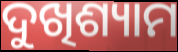
ଦୁଖିଶ୍ୟାମ